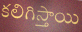
కలిగిస్తాయి